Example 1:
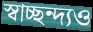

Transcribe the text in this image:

স্বাচ্ছন্দ্যও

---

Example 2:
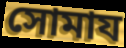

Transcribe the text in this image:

সোমায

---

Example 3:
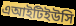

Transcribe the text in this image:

এআইটিইউসি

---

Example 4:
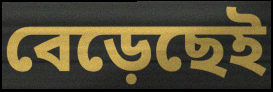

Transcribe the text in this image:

বেড়েছেই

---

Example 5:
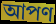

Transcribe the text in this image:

আপণ